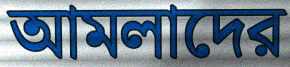
আমলাদের